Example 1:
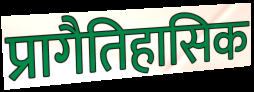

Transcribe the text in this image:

प्रागैतिहासिक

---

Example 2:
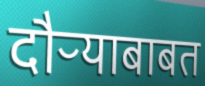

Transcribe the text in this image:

दौऱ्याबाबत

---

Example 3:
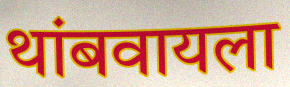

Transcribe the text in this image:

थांबवायला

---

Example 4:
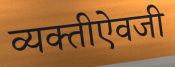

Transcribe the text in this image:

व्यक्तीऐवजी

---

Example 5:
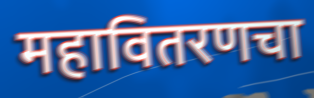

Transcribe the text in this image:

महावितरणचा